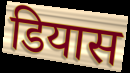
डियास